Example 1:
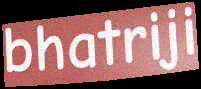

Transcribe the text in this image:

bhatriji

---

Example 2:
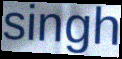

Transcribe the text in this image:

singh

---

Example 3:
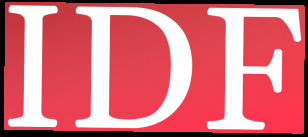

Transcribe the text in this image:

IDF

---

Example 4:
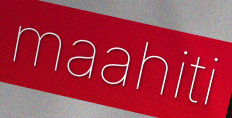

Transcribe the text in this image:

maahiti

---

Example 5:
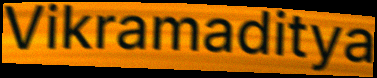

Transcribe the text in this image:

Vikramaditya